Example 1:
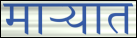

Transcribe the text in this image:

माऱ्यात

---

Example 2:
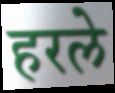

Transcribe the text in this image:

हरले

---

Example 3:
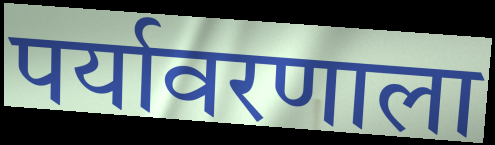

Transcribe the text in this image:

पर्यावरणाला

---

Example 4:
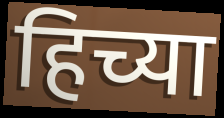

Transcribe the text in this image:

हिच्या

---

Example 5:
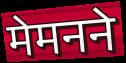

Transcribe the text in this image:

मेमनने